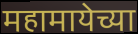
महामायेच्या